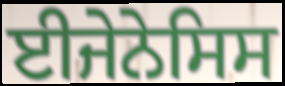
ਈਜੇਨੇਸਿਸ